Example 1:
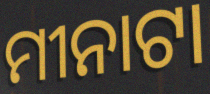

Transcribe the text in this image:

ମୀନାଟା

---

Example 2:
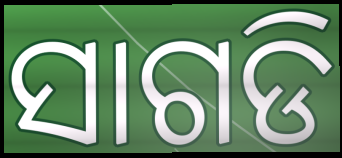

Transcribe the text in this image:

ସାଗଡି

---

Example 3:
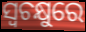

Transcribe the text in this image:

ସ୍ୱଚକ୍ଷୁରେ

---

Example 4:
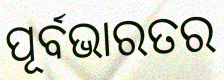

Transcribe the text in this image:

ପୂର୍ବଭାରତର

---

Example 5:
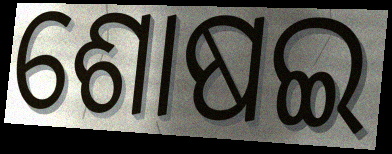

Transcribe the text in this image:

ଶୋଷଇ